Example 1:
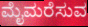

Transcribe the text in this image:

ಮೈಮರೆಸುವ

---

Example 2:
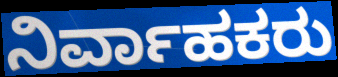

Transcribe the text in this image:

ನಿರ್ವಾಹಕರು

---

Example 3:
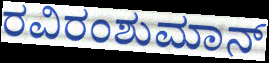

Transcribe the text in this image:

ರವಿರಂಶುಮಾನ್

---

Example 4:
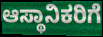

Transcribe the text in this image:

ಆಸ್ಥಾನಿಕರಿಗೆ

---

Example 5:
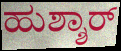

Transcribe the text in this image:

ಹುಶ್ಶಾರ್